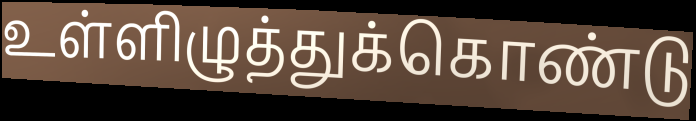
உள்ளிழுத்துக்கொண்டு